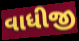
વાધીજી